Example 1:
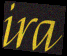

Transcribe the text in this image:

ira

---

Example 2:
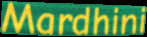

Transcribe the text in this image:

Mardhini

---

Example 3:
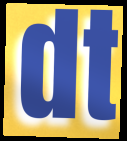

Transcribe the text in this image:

dt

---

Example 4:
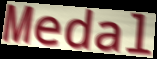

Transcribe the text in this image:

Medal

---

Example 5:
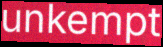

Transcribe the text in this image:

unkempt